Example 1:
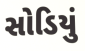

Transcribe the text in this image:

સોડિયું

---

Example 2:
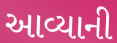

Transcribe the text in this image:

આવ્યાની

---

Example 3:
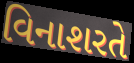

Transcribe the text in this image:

વિનાશરતે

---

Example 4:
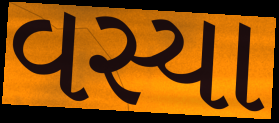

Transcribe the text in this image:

વસ્યા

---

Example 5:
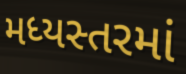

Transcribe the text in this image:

મધ્યસ્તરમાં